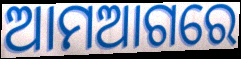
ଆମଆଗରେ